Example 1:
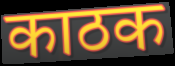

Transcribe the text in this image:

काठक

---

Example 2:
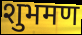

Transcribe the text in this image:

शुभमण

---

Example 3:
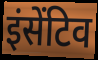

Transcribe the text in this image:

इंसेंटिव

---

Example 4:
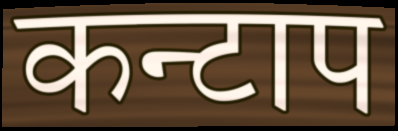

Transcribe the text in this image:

कन्टाप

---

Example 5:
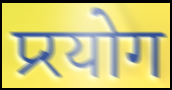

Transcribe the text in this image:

प्र्रयोग